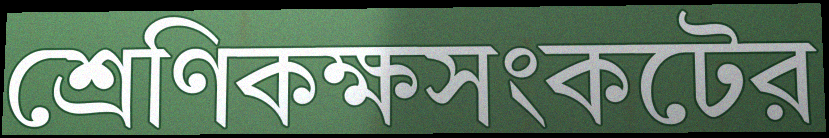
শ্রেণিকক্ষসংকটের